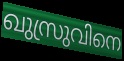
ഖുസ്രുവിനെ